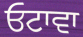
ਓਟਾਵਾ